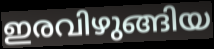
ഇരവിഴുങ്ങിയ